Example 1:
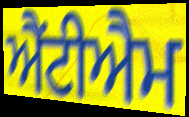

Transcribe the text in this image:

ਐਂਟੀਐਮ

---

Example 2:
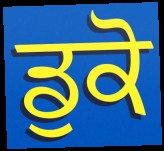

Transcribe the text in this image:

ਡੁਕੋ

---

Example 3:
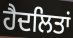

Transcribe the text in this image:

ਹੈਦਲਿਤਾਂ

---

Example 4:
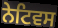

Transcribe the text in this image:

ਨੇਟਿਵਸ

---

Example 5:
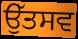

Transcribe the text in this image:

ਉੱਤਸਵ